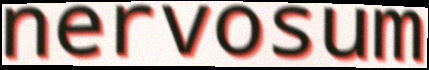
nervosum